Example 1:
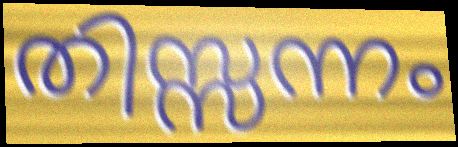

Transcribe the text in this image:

തിസ്സന്നം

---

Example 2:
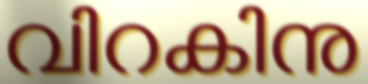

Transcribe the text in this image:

വിറകിനു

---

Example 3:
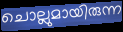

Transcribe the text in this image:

ചൊല്ലുമായിരുന്ന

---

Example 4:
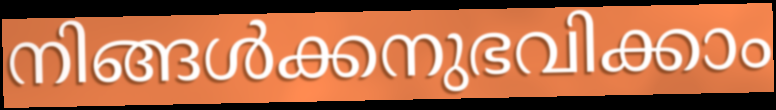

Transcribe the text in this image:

നിങ്ങൾക്കനുഭവിക്കാം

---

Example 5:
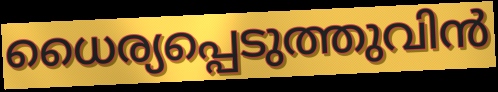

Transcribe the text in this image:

ധൈര്യപ്പെടുത്തുവിൻ